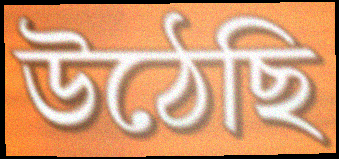
উঠেছি